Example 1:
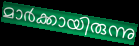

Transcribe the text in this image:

മാർക്കായിരുന്നു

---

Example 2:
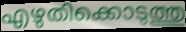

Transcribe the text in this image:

എഴുതിക്കൊടുത്തു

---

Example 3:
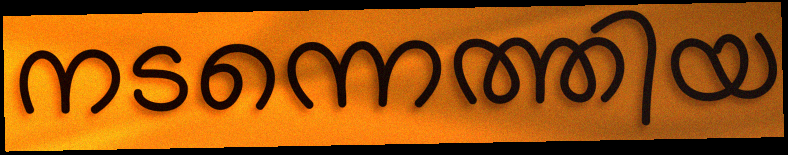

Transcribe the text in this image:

നടന്നെത്തിയ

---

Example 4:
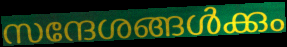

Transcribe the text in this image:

സന്ദേശങ്ങൾക്കും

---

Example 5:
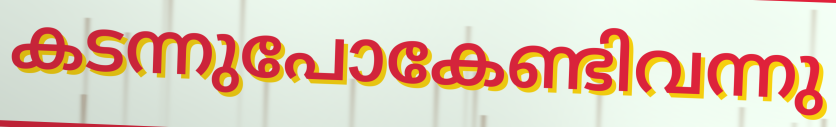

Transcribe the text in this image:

കടന്നുപോകേണ്ടിവന്നു